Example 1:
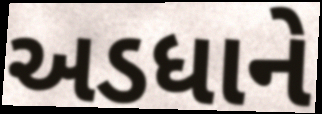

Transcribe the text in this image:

અડધાને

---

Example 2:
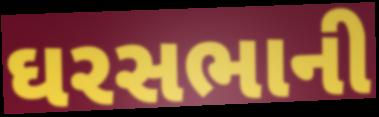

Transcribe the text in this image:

ઘરસભાની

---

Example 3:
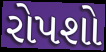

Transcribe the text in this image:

રોપશો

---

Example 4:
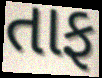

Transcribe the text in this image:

તાફ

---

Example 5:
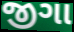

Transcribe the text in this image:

જીગા